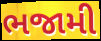
ભજામી